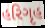
હરિગૃહ